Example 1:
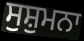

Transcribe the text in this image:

ਸੁਸ਼ੁਮਨਾ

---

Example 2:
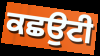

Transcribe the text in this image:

ਕਛਉਟੀ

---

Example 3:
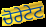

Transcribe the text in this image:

ਚੋਰੇਟੇਟ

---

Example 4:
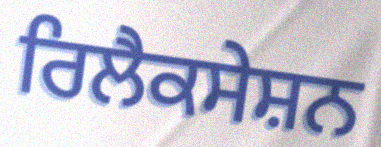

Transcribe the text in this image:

ਰਿਲੈਕਸੇਸ਼ਨ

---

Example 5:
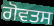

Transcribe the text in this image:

ਗੋਵਤਸ